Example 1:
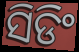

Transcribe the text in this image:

ସିଡିଂ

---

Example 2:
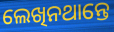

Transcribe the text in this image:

ଲେଖିନଥାନ୍ତେ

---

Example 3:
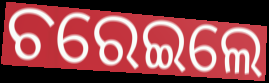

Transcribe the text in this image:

ଚରେଇଲେ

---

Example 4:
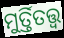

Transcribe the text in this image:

ମୁର୍ତ୍ତିତତ୍ତ୍ବ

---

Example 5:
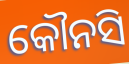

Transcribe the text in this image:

କୌନସି